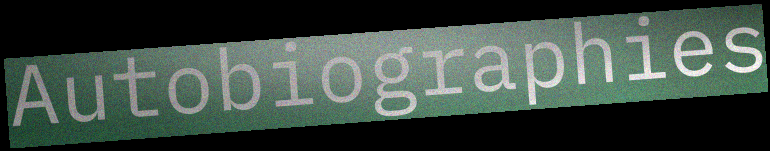
Autobiographies